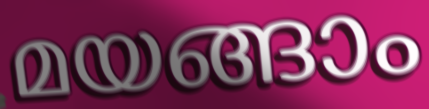
മയങ്ങാം